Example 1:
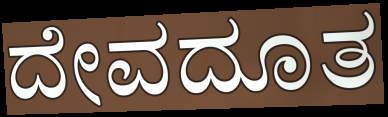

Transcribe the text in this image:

ದೇವದೂತ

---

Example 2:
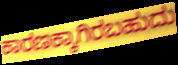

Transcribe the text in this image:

ಕಾರಣಕ್ಕಾಗಿರಬಹುದು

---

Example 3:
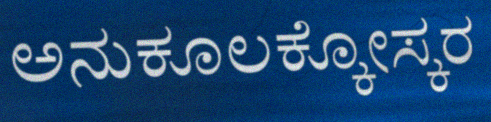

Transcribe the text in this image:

ಅನುಕೂಲಕ್ಕೋಸ್ಕರ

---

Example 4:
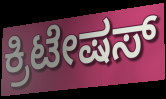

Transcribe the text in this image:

ಕ್ರಿಟೇಷಸ್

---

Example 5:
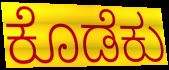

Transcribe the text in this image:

ಕೊಡೆಕು